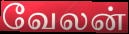
வேலன்